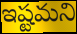
ఇష్టమని